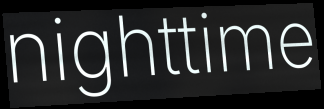
nighttime